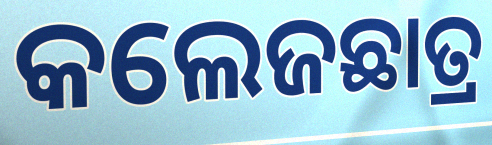
କଲେଜଛାତ୍ର